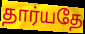
தார்யதே